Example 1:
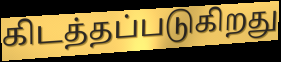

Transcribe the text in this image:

கிடத்தப்படுகிறது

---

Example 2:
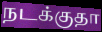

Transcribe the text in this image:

நடக்குதா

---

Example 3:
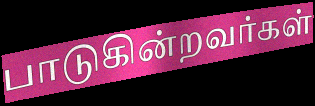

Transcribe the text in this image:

பாடுகின்றவர்கள்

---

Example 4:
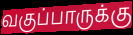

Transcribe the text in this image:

வகுப்பாருக்கு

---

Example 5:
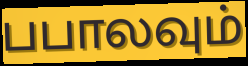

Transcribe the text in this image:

பபாலவும்